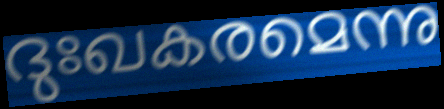
ദുഃഖകരമെന്നു